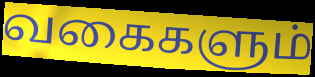
வகைகளும்